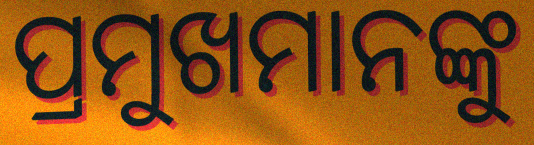
ପ୍ରମୁଖମାନଙ୍କୁ